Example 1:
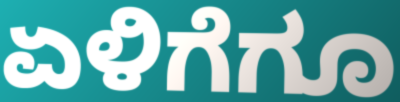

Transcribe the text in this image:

ಏಳಿಗೆಗೂ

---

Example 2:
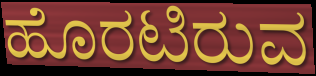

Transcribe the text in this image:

ಹೊರಟಿರುವ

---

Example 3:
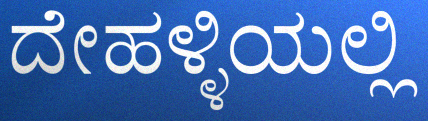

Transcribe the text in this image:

ದೇಹಳ್ಳಿಯಲ್ಲಿ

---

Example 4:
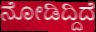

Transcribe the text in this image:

ನೋಡಿದ್ದಿದೆ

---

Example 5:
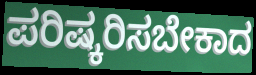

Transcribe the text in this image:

ಪರಿಷ್ಕರಿಸಬೇಕಾದ